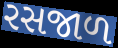
રસજાળ